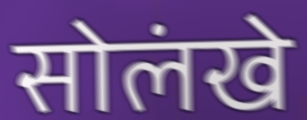
सोलंखे